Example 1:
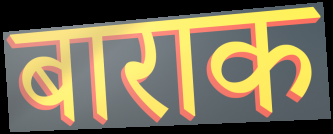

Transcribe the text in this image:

बाराक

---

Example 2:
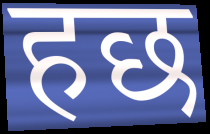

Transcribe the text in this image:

हछ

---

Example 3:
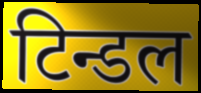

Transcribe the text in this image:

टिन्डल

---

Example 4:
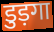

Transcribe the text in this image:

डुड़गा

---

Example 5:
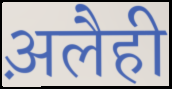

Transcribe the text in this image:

अ़लैही